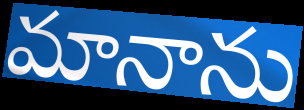
మానాను